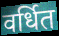
वर्धित